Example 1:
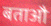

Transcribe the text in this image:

बताऔ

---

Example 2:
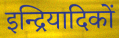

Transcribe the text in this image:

इन्द्रियादिकों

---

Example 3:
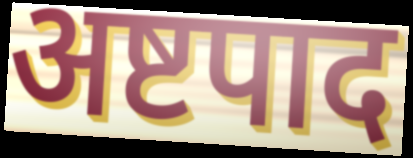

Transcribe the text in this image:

अष्टपाद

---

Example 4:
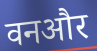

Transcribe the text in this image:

वनऔर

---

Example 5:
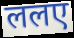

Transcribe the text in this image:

ललए